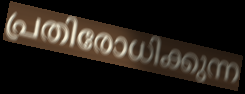
പ്രതിരോധിക്കുന്ന